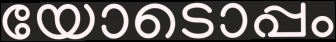
യോടൊപ്പം